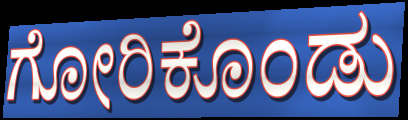
ಗೋರಿಕೊಂಡು